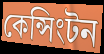
কেন্সিংটন